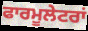
ਫਾਰਮੂਲੇਟਰਾਂ